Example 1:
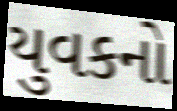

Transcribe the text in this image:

યુવકનો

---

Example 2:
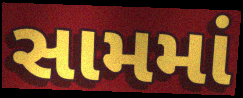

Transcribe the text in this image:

સામમાં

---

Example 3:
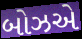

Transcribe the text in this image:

બોઝએ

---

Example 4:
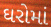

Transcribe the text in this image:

ઘરોમાં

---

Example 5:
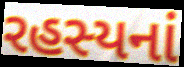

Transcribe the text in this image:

રહસ્યનાં